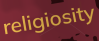
religiosity